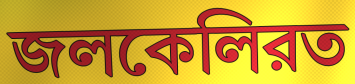
জলকেলিরত